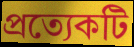
প্ৰত্যেকটি